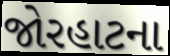
જોરહાટના